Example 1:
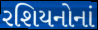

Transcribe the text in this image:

રશિયનોનાં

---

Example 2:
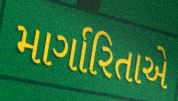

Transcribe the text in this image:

માર્ગારિતાએ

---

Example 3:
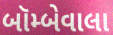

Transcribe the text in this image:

બૉમ્બેવાલા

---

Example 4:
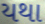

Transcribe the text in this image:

યથા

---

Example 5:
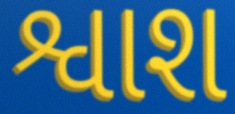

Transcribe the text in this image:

શ્વાશ